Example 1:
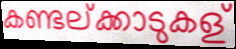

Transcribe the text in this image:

കണ്ടല്ക്കാടുകള്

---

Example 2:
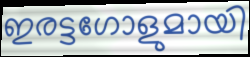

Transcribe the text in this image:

ഇരട്ടഗോളുമായി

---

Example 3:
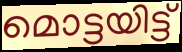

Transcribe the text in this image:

മൊട്ടയിട്ട്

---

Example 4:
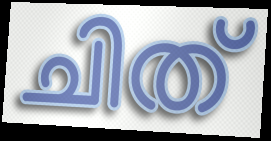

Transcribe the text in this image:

ചിത്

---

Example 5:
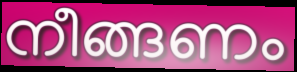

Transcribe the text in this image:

നീങ്ങണം